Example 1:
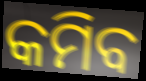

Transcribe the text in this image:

କମିବ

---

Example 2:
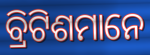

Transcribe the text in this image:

ବ୍ରିଟିଶମାନେ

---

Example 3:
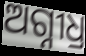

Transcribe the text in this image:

ଅଗ୍ନୀଧ୍ର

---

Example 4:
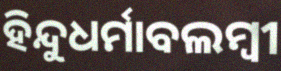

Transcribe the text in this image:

ହିନ୍ଦୁଧର୍ମାବଲମ୍ବୀ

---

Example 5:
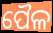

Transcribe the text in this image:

ପୈଳ